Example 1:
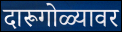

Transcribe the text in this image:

दारूगोळ्यावर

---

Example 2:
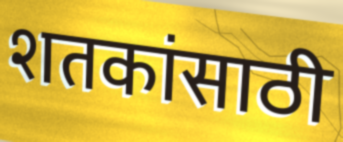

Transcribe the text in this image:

शतकांसाठी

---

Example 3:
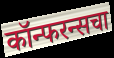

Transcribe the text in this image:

कॉन्फरन्सचा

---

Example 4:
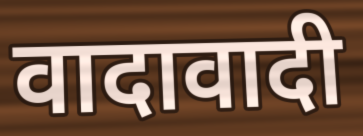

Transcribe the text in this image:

वादावादी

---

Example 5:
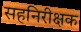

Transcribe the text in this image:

सहनिरीक्षक